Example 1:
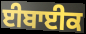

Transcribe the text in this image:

ਈਬਾਈਕ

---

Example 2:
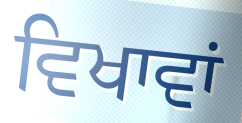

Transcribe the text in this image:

ਵਿਖਾਵਾਂ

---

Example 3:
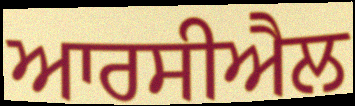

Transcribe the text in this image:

ਆਰਸੀਐਲ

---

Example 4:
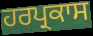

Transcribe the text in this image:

ਹਰਪ੍ਰਕਾਸ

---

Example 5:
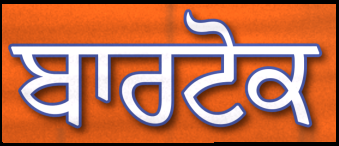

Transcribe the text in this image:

ਬਾਰਟੋਕ